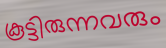
കൂട്ടിരുന്നവരും